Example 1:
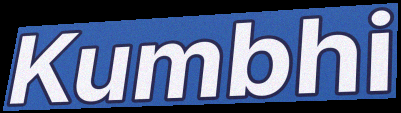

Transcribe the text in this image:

Kumbhi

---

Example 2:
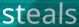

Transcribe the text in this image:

steals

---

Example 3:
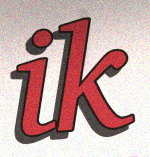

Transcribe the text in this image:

ik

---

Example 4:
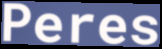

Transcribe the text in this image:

Peres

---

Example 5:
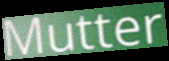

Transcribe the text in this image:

Mutter